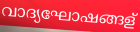
വാദ്യഘോഷങ്ങള്